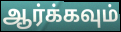
ஆர்க்கவும்